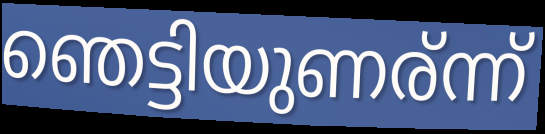
ഞെട്ടിയുണര്ന്ന്